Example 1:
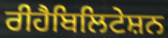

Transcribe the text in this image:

ਰੀਹੈਬਿਲਿਟੇਸ਼ਨ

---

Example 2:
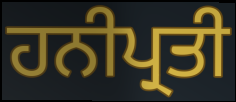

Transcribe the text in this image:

ਹਨੀਪ੍ਰਤੀ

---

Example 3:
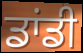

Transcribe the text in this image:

ਡਾਂਡੀ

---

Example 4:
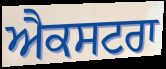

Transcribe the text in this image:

ਐਕਸਟਰਾ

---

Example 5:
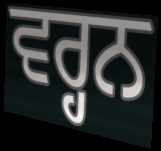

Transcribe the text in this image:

ਵਰ੍ਹਨ